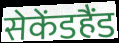
सेकेंडहैंड